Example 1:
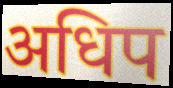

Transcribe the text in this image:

अधिप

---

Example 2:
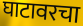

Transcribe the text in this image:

घाटावरचा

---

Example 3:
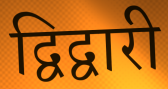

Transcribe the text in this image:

द्विद्वारी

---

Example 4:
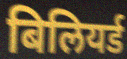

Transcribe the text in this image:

बिलियर्ड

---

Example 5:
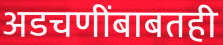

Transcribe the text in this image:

अडचणींबाबतही